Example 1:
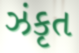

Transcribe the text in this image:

ઝંકૃત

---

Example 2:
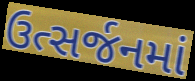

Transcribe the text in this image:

ઉત્સર્જનમાં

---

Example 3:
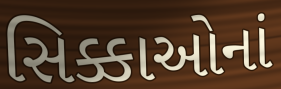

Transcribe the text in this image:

સિક્કાઓનાં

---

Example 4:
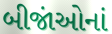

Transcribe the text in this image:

બીજાંઓનાં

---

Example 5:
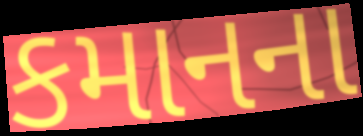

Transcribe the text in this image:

કમાનના